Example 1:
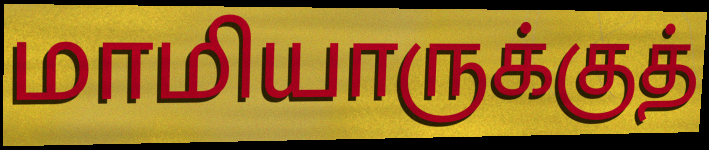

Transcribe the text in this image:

மாமியாருக்குத்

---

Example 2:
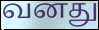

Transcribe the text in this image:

வனது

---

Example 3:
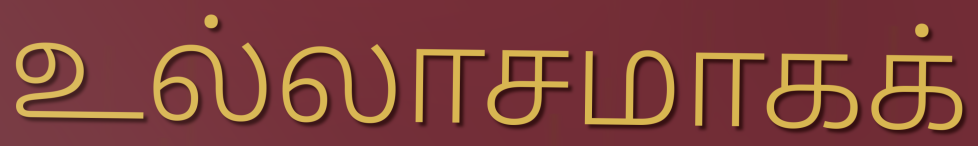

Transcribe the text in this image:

உல்லாசமாகக்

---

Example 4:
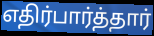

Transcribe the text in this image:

எதிர்பார்த்தார்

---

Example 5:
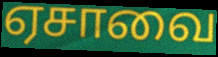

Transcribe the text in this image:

ஏசாவை